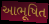
આભૂષિત